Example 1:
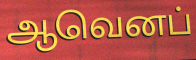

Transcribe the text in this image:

ஆவெனப்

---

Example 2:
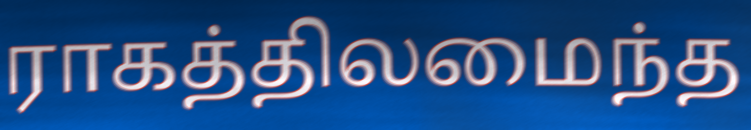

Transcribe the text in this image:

ராகத்திலமைந்த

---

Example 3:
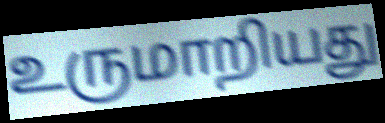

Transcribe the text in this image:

உருமாறியது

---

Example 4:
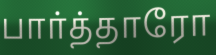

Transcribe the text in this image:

பார்த்தாரோ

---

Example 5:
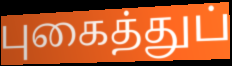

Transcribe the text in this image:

புகைத்துப்